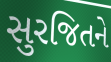
સુરજિતને